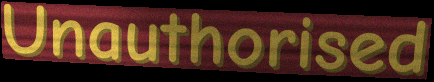
Unauthorised